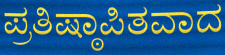
ಪ್ರತಿಷ್ಠಾಪಿತವಾದ